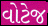
વોટેજ